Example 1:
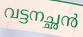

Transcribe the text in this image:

വട്ടനച്ഛൻ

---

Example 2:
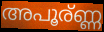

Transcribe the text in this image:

അപൂര്ണ്ണ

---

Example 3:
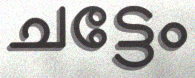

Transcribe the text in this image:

ചട്ടേം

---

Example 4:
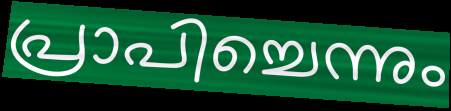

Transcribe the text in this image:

പ്രാപിച്ചെന്നും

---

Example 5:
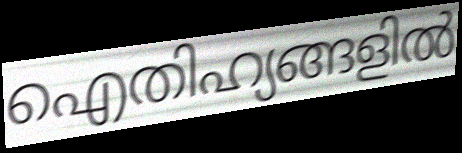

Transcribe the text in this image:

ഐതിഹ്യങ്ങളിൽ